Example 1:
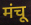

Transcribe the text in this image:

मंचू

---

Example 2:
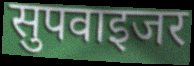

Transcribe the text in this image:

सुपवाइजर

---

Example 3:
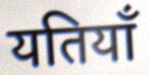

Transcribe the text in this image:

यतियाँ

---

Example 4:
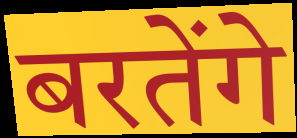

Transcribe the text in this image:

बरतेंगे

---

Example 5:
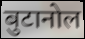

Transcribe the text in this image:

बुटानोल